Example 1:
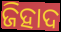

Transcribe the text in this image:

ଜିହାଦ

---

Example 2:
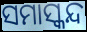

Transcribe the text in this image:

ସମାସ୍କନ୍ଦ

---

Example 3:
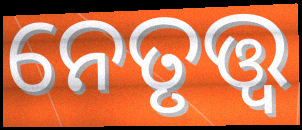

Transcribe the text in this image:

ନେତୃତ୍ତ୍ୱ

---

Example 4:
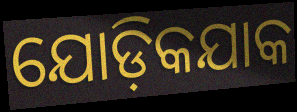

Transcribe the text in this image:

ଯୋଡ଼ିକଯାକ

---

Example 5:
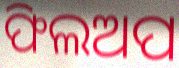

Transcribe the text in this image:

ଫିଲଅପ